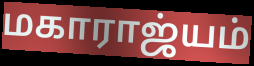
மகாராஜ்யம்